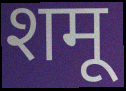
शमू